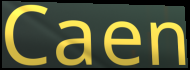
Caen